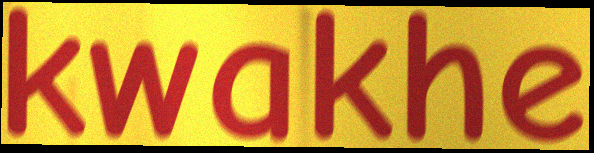
kwakhe